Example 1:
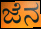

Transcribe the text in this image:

ಜೆನ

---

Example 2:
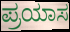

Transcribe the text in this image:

ಪ್ರಯಾಸ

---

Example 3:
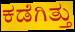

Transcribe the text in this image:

ಕಡೆಗಿತ್ತು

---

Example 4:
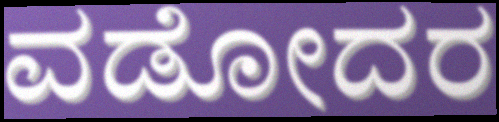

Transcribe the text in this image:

ವಡೋದರ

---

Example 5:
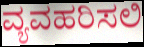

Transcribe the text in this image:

ವ್ಯವಹರಿಸಲಿ